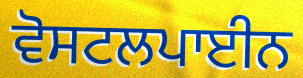
ਵੋਸਟਲਪਾਈਨ